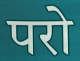
परो